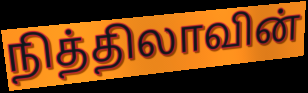
நித்திலாவின்